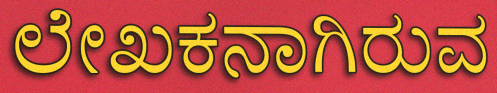
ಲೇಖಕನಾಗಿರುವ